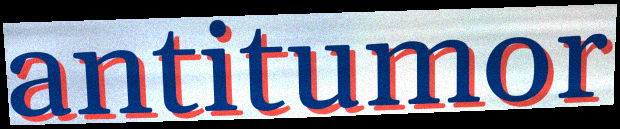
antitumor